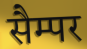
सैम्पर